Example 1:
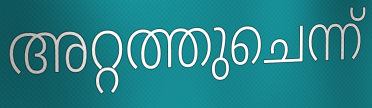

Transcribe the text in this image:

അറ്റത്തുചെന്ന്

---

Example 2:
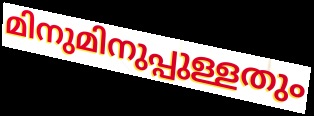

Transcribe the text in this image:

മിനുമിനുപ്പുള്ളതും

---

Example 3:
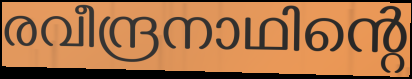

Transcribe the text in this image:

രവീന്ദ്രനാഥിന്റെ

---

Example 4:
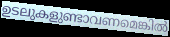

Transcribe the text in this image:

ഉടലുകളുണ്ടാവണമെങ്കിൽ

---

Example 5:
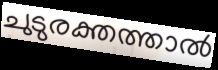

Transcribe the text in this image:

ചുടുരക്തത്താൽ